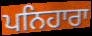
ਪਨਿਹਾਰਾ